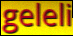
geleli